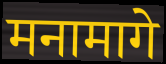
मनामागे